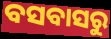
ବସବାସରୁ